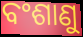
ବଂଶାଣୁ